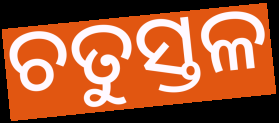
ଚତୁସ୍ତଳ